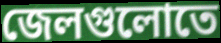
জেলগুলোতে